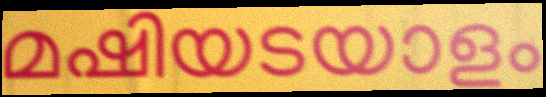
മഷിയടയാളം